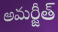
అమర్జీత్